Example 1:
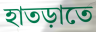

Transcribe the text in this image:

হাতড়াতে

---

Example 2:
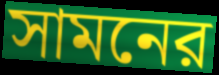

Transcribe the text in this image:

সামনের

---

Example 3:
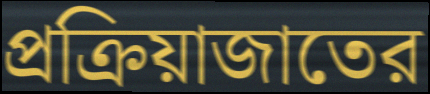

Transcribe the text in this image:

প্রক্রিয়াজাতের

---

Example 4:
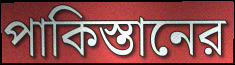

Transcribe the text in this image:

পাকিস্তানের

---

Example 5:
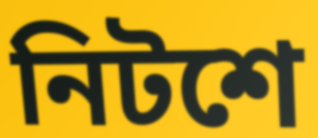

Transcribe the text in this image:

নিটশে